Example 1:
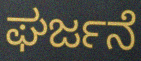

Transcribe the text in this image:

ಘರ್ಜನೆ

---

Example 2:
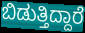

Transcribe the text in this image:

ಬಿಡುತ್ತಿದ್ದಾರೆ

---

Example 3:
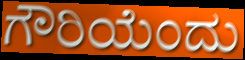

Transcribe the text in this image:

ಗೌರಿಯೆಂದು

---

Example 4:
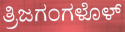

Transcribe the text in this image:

ತ್ರಿಜಗಂಗಳೊಳ್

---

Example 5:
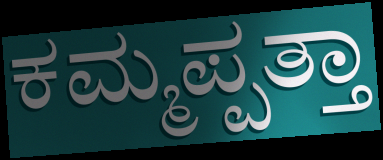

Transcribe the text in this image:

ಕಮ್ಮಪ್ಪತ್ತಾ